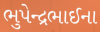
ભુપેન્દ્રભાઈના